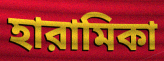
হারামিকা